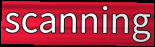
scanning